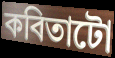
কবিতাটো